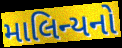
માલિન્યનો